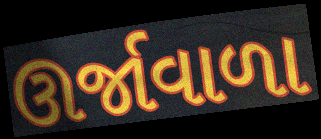
ઊર્જાવાળા